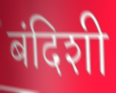
बंदिशी